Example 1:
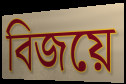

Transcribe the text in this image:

বিজয়ে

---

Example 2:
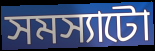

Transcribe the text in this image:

সমস্যাটো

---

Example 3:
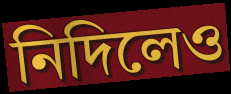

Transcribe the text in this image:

নিদিলেও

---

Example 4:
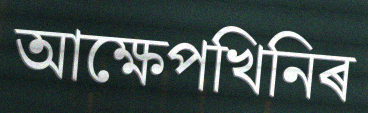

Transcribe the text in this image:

আক্ষেপখিনিৰ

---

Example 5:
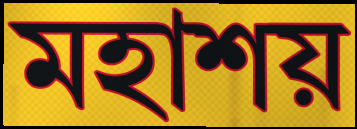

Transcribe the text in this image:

মহাশয়